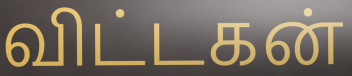
விட்டகன்